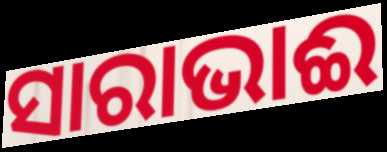
ସାରାଭାଈ